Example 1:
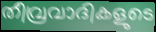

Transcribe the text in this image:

തീവ്രവാദികളുടെ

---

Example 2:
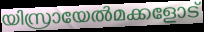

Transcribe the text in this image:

യിസ്രായേൽമക്കളോട്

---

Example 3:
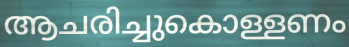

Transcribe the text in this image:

ആചരിച്ചുകൊള്ളണം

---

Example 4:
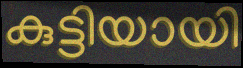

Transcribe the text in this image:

കുട്ടിയായി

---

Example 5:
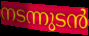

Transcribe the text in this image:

നടന്നുടൻ